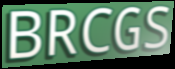
BRCGS